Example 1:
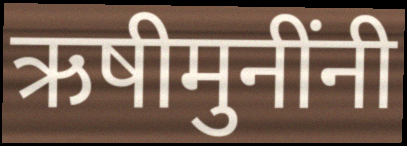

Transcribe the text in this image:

ऋषीमुनींनी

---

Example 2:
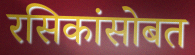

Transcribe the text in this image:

रसिकांसोबत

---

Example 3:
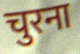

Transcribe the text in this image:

चुरना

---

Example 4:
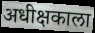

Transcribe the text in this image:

अधीक्षकाला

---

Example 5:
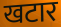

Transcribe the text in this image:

खटार